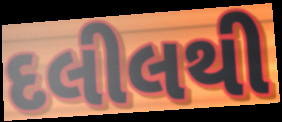
દલીલથી